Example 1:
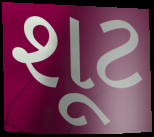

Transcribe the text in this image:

શૂટ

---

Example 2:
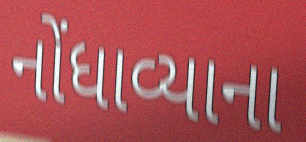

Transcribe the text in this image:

નોંધાવ્યાના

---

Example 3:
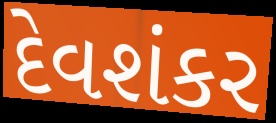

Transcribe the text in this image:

દેવશંકર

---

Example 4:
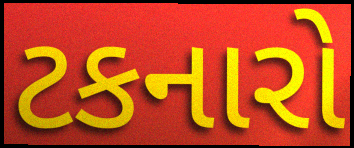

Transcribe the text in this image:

ટકનારો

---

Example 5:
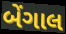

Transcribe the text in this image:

બેંગાલ